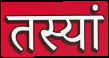
तस्यां